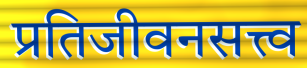
प्रतिजीवनसत्त्व